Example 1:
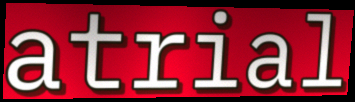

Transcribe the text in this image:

atrial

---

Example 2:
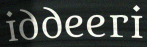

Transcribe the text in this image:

iddeeri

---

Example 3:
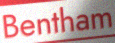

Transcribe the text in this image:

Bentham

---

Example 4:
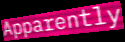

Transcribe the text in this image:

Apparently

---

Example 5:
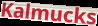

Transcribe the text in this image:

Kalmucks